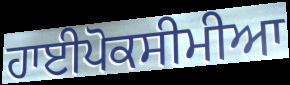
ਹਾਈਪੋਕਸੀਮੀਆ